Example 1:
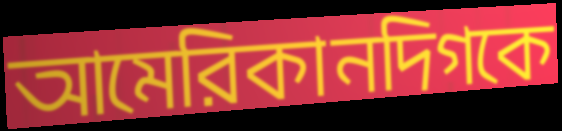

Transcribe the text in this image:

আমেরিকানদিগকে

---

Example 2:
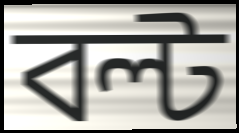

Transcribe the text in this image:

বল্ট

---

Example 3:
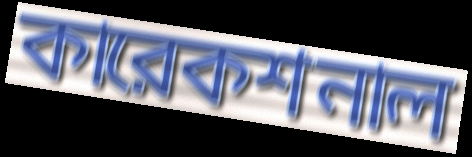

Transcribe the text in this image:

কারেকশনাল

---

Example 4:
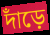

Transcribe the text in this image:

দাঁড়ে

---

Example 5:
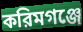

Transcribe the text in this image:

করিমগঞ্জে